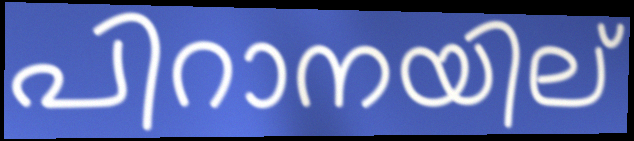
പിറാനയില്